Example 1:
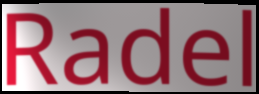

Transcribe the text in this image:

Radel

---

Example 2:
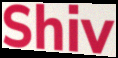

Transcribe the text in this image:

Shiv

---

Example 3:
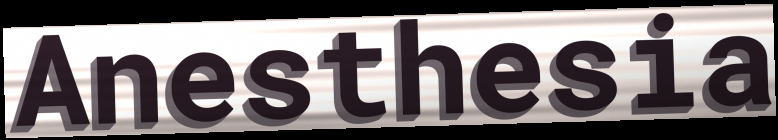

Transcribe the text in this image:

Anesthesia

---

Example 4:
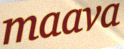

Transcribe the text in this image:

maava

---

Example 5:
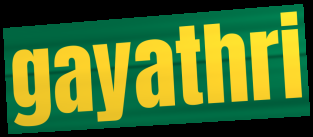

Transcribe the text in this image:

gayathri